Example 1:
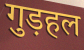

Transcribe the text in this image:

गुड़हल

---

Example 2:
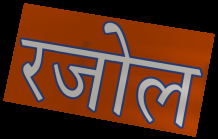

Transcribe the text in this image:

रजोल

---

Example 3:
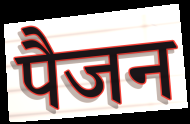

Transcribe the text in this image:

पैजन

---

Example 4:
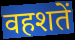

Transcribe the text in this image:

वहशतें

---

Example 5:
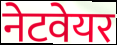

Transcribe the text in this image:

नेटवेयर